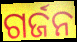
ଗର୍ଜନ